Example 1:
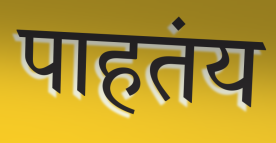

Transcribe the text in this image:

पाहतंय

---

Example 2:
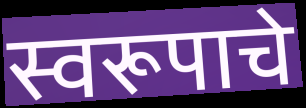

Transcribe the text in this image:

स्वरूपाचे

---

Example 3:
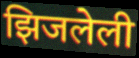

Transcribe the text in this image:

झिजलेली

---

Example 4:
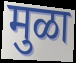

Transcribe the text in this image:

मुळा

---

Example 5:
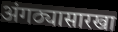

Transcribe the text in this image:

अंगठ्यासारखा